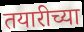
तयारीच्या